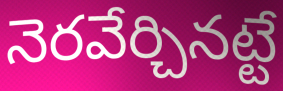
నెరవేర్చినట్టే